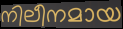
നിലീനമായ